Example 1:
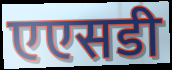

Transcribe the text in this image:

एएसडी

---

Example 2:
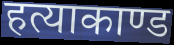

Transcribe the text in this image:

हत्याकाण्ड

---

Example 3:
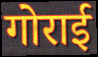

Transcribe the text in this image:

गोराई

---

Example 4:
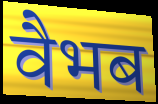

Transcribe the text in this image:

वैभब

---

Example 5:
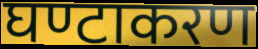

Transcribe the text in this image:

घण्टाकरण